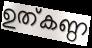
ഉത്കണ്ഠ